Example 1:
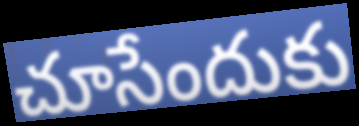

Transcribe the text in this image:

చూసేందుకు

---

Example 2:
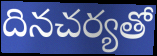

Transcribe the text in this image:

దినచర్యతో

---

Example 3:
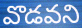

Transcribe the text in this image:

వొడవని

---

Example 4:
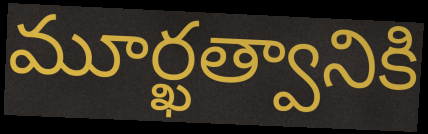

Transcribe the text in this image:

మూర్ఖత్వానికి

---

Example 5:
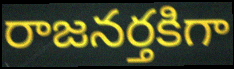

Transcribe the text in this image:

రాజనర్తకిగా